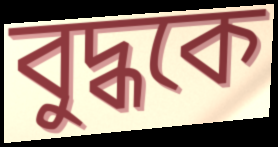
বুদ্ধকে